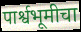
पार्श्वभूमीचा